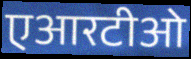
एआरटीओ